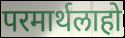
परमार्थलाहो